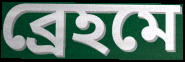
ব্রেহমে